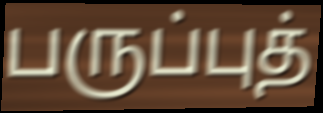
பருப்புத்